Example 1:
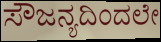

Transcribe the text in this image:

ಸೌಜನ್ಯದಿಂದಲೇ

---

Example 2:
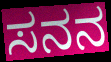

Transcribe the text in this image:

ಸನನ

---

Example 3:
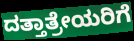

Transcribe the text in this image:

ದತ್ತಾತ್ರೇಯರಿಗೆ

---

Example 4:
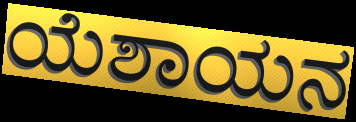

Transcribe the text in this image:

ಯೆಶಾಯನ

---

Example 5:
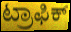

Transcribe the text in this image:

ಟ್ರಾಫಿಕ್